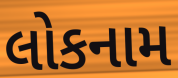
લોકનામ